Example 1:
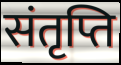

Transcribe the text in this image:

संतृप्ति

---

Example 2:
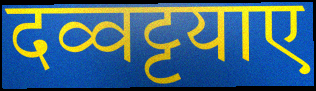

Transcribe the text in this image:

दव्वट्टयाए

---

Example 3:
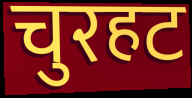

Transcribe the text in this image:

चुरहट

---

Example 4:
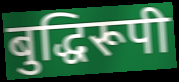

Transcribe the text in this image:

बुद्धिरूपी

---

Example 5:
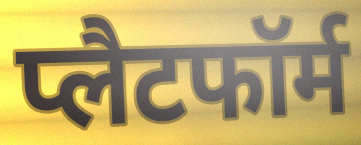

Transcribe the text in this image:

प्लैटफॉर्म